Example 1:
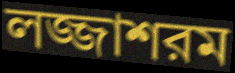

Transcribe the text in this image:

লজ্জাশরম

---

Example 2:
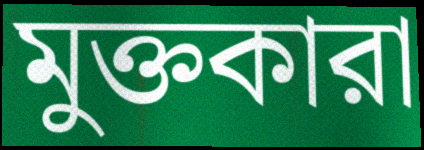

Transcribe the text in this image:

মুক্তকারা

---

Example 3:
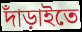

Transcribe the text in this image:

দাঁড়াইতে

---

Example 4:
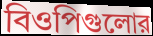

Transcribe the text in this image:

বিওপিগুলোর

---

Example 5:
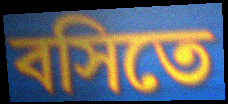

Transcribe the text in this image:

বসিতে